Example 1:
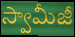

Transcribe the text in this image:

స్వామీజీ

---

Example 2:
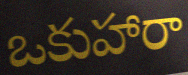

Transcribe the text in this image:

ఒకుహారా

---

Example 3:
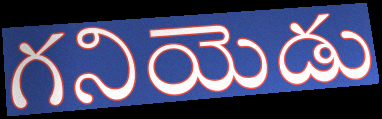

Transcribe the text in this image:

గనియెడు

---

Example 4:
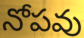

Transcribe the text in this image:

నోపవు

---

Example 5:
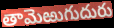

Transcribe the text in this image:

తామెఱుగుదురు